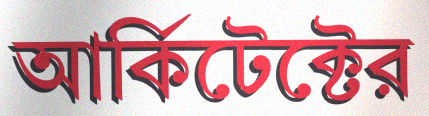
আর্কিটেক্টের